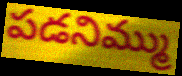
పడనిమ్ము